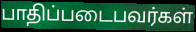
பாதிப்படைபவர்கள்